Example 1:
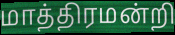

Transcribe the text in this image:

மாத்திரமன்றி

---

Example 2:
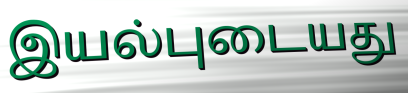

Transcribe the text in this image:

இயல்புடையது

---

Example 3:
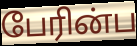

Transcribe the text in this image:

பேரின்ப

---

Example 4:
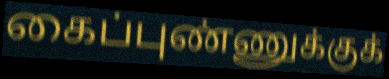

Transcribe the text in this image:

கைப்புண்ணுக்குக்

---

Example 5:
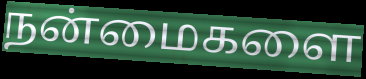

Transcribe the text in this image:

நன்மைகளை